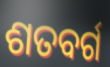
ଶତବର୍ଗ